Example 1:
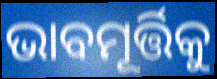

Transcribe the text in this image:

ଭାବମୂର୍ତ୍ତିକୁ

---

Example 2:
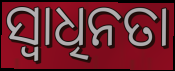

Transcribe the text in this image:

ସ୍ଵାଧିନତା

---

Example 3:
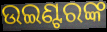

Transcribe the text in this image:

ଉଇଣ୍ଟରଙ୍କ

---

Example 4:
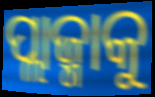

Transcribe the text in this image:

ପ୍ଲାଜ୍ମାକୁ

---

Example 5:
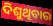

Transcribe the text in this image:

ଦିଶୁଥିବାର